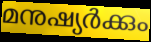
മനുഷ്യർക്കും